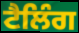
ਟੈਲਿੰਗ